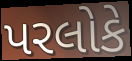
પરલોકે